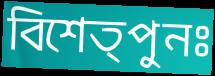
বিশেত্পুনঃ